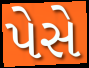
પેસે